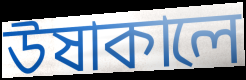
উষাকালে